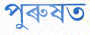
পুৰুষত